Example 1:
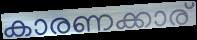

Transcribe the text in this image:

കാരണക്കാര്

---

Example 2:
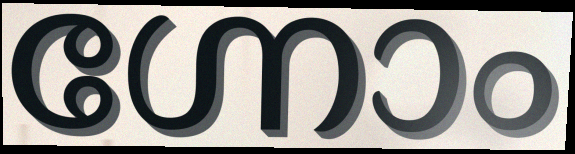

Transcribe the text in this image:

ഗ്നോം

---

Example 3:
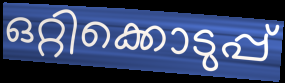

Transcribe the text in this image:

ഒറ്റിക്കൊടുപ്പ്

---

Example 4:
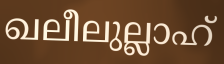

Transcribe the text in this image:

ഖലീലുല്ലാഹ്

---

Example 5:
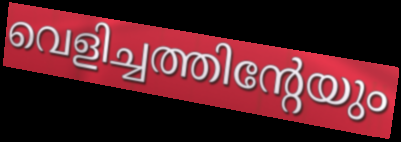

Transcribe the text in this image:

വെളിച്ചത്തിന്റേയും